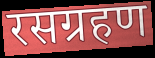
रसग्रहण